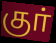
குர்